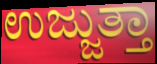
ಉಜ್ಜುತ್ತಾ